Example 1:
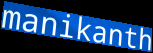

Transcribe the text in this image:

manikanth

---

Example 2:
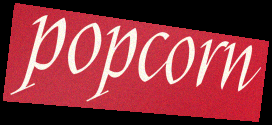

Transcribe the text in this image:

popcorn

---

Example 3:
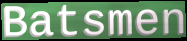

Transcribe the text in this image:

Batsmen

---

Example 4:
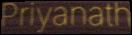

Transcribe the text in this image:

Priyanath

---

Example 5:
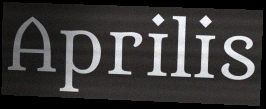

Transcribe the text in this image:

Aprilis